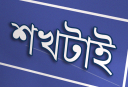
শখটাই